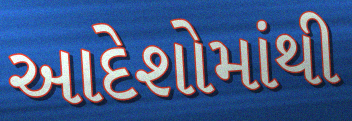
આદેશોમાંથી